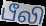
பீலி